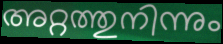
അറ്റത്തുനിന്നും